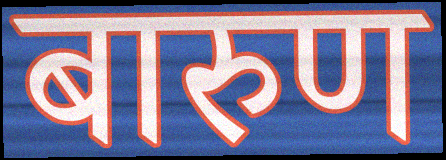
बारुण